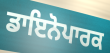
ਡਾਇਨੋਪਾਰਕ